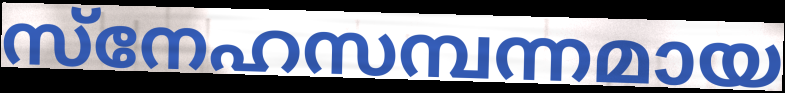
സ്നേഹസമ്പന്നമായ